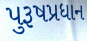
પુરૂષપ્રધાન